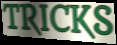
TRICKS